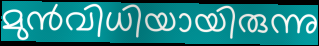
മുൻവിധിയായിരുന്നു